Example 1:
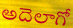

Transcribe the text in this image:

అదెలాగో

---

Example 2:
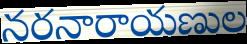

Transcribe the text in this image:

నరనారాయణుల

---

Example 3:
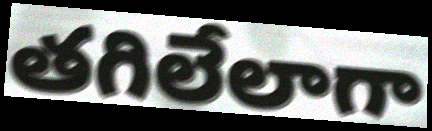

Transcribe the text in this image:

తగిలేలాగా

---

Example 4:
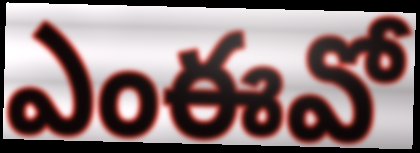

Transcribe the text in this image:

ఎంఈవో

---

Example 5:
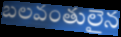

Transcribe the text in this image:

బలవంతులైన